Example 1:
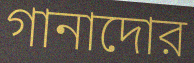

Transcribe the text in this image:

গানাদোর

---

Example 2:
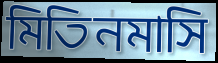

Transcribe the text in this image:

মিতিনমাসি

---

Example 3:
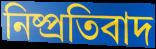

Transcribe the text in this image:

নিষ্প্রতিবাদ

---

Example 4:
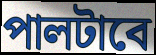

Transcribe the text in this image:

পালটাবে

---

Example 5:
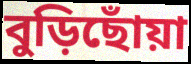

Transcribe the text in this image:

বুড়িছোঁয়া